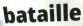
bataille